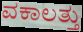
ವಕಾಲತ್ತು